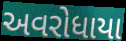
અવરોધાયા